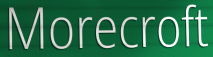
Morecroft